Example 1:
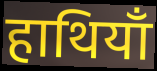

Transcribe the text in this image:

हाथियाँ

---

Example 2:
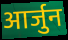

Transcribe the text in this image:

आर्जुन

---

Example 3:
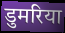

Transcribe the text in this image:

डुमरिया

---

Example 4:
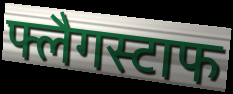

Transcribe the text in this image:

फ्लैगस्टाफ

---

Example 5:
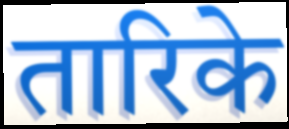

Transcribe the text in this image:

तारिके